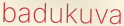
badukuva